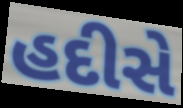
હદીસે